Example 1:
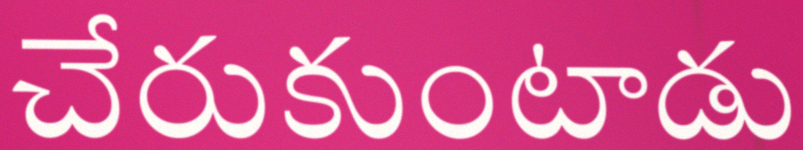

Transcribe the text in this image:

చేరుకుంటాడు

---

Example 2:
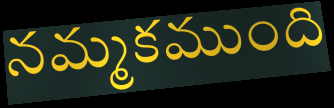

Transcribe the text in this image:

నమ్మకముంది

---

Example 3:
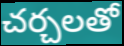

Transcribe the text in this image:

చర్చలతో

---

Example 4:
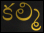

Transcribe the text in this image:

కల్మి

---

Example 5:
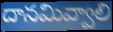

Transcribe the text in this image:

దానమివ్వాలి